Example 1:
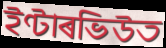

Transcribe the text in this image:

ইণ্টাৰভিউত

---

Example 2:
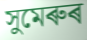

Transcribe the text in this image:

সুমেৰুৰ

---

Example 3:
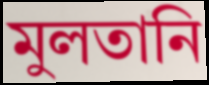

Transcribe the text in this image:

মুলতানি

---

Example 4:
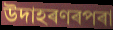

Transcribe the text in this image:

উদাহৰণৰপৰা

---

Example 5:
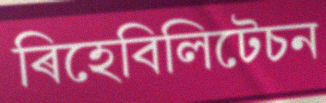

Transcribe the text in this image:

ৰিহেবিলিটেচন